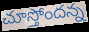
చూస్తోందన్న